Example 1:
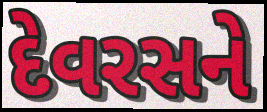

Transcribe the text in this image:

દેવરસને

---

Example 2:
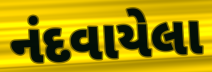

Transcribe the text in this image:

નંદવાયેલા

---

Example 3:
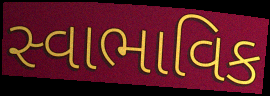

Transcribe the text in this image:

સ્વાભાવિક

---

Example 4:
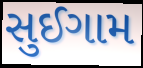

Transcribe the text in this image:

સુઈગામ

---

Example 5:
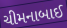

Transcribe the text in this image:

ચીમનાબાઈ